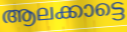
ആലക്കാട്ടെ